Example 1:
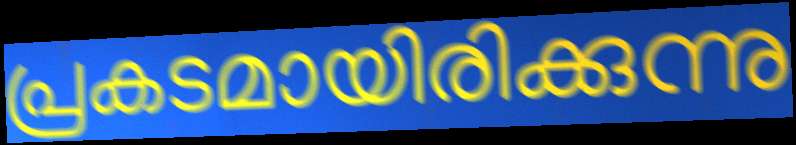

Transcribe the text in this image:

പ്രകടമായിരിക്കുന്നു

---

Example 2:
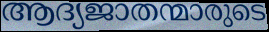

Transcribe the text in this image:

ആദ്യജാതന്മാരുടെ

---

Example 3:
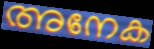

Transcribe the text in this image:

അനേക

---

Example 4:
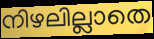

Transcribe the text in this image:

നിഴലില്ലാതെ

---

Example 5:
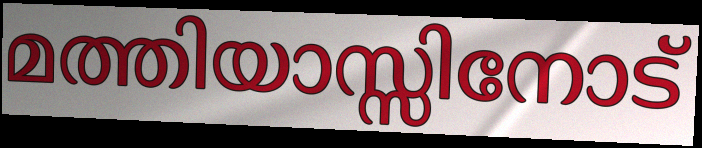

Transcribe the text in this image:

മത്തിയാസ്സിനോട്